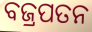
ବଜ୍ରପତନ